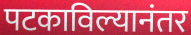
पटकाविल्यानंतर